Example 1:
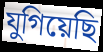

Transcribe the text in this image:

যুগিয়েছি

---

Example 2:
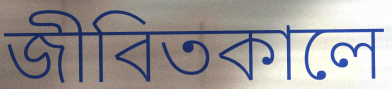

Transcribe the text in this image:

জীবিতকালে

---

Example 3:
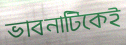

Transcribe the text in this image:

ভাবনাটিকেই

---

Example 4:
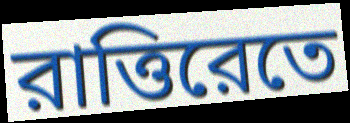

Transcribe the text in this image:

রাত্তিরেতে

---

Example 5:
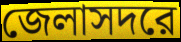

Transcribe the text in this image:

জেলাসদরে